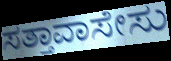
ಸತ್ತಾವಾಸೇಸು